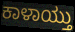
ಕಾಳಾಯ್ತು